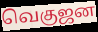
வெகுஜன